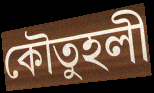
কৌতুহলী